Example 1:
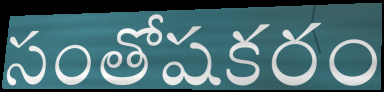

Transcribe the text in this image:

సంతోషకరం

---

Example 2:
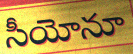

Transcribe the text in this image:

సీయోనూ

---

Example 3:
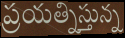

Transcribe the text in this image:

ప్రయత్నిస్తున్న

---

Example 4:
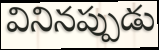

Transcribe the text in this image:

వినినప్పుడు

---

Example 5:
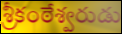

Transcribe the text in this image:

శ్రీకంఠేశ్వరుడు